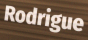
Rodrigue